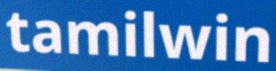
tamilwin